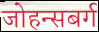
जोहन्सबर्ग